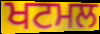
ਖਟਮਲ